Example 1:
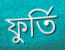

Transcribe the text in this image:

ফুর্তি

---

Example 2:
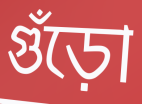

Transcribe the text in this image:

গুঁড়ো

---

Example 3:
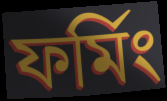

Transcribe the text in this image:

ফর্মিং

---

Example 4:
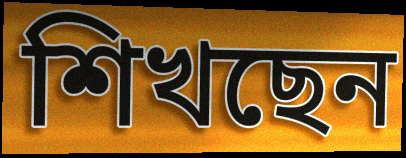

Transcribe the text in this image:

শিখছেন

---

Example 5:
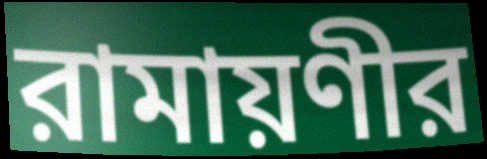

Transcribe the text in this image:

রামায়ণীর